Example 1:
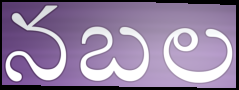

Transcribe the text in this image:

నబల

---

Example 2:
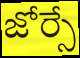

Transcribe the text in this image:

జోర్సే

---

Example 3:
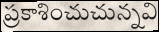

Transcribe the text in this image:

ప్రకాశించుచున్నవి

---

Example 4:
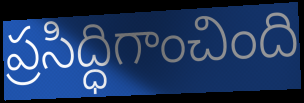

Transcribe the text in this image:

ప్రసిద్ధిగాంచింది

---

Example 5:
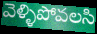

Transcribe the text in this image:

వెళ్ళిపోవలసి